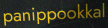
panippookkal